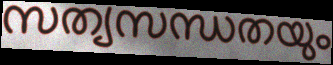
സത്യസന്ധതയും